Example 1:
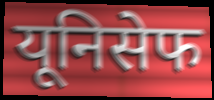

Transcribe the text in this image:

यूनिसेफ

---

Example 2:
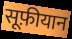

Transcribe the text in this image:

सूफ़ीयान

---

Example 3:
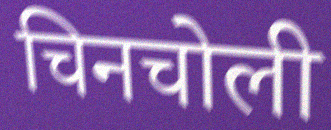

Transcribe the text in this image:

चिनचोली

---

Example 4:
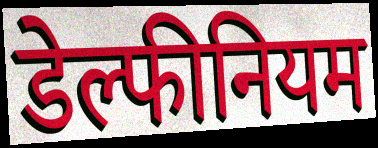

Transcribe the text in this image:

डेल्फीनियम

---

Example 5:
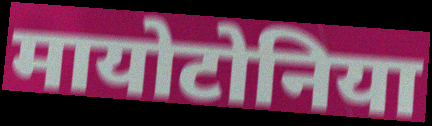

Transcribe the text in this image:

मायोटोनिया